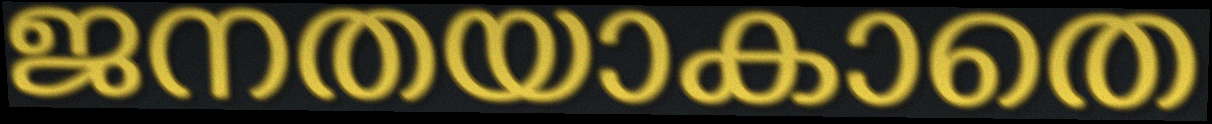
ജനതയാകാതെ